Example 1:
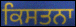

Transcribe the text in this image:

ਕਿਸਤਨਾ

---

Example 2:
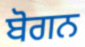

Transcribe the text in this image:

ਬੋਗਨ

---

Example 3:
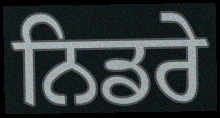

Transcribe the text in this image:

ਨਿਡਰੇ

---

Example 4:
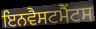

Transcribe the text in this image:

ਇਨਵੈਸਟਮੈਂਟਸ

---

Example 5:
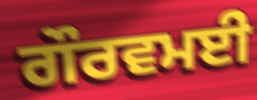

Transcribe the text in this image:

ਗੌਰਵਮਈ